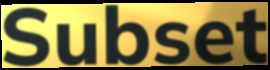
Subset